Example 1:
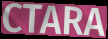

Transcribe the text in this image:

CTARA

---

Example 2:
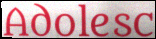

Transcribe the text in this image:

Adolesc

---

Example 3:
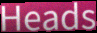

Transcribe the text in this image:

Heads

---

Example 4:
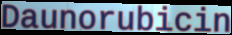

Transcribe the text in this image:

Daunorubicin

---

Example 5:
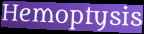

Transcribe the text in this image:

Hemoptysis